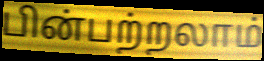
பின்பற்றலாம்